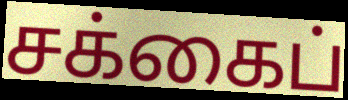
சக்கைப்